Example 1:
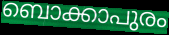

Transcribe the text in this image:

ബൊക്കാപുരം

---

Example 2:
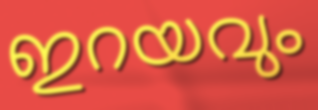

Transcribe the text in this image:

ഇറയവും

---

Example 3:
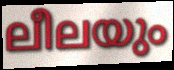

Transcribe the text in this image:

ലീലയും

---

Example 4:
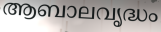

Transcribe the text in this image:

ആബാലവൃദ്ധം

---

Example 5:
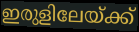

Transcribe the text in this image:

ഇരുളിലേയ്ക്ക്